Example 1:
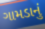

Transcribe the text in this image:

ગામડાનું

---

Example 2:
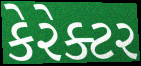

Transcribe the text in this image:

કેરેક્ટર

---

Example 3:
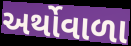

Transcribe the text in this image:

અર્થોવાળા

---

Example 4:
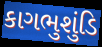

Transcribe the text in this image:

કાગભુશુંડિ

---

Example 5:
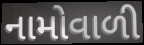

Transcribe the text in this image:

નામોવાળી